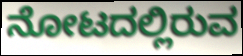
ನೋಟದಲ್ಲಿರುವ